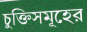
চুক্তিসমূহের